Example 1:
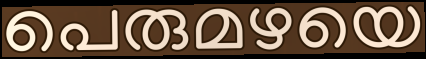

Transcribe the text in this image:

പെരുമഴയെ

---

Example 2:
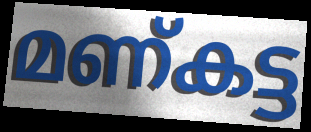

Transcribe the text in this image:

മണ്കട്ട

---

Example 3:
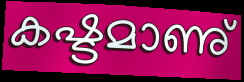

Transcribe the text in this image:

കഷ്ടമാണു്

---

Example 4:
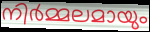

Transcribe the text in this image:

നിർമ്മലമായും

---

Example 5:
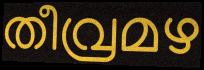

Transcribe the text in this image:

തീവ്രമഴ